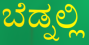
ಬೆಡ್ನಲ್ಲಿ